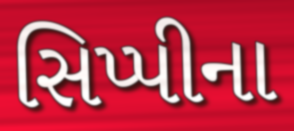
સિપ્પીના